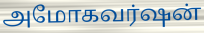
அமோகவர்ஷன்